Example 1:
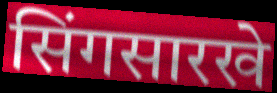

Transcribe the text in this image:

सिंगसारखे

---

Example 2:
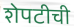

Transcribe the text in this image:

शेपटीची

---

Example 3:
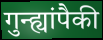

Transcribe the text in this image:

गुन्ह्यांपैकी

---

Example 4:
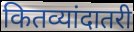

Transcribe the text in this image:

कितव्यांदातरी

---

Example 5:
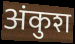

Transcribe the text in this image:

अंकुश